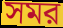
সমর